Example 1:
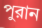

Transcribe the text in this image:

পুরান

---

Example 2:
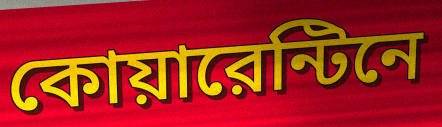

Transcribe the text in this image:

কোয়ারেন্টিনে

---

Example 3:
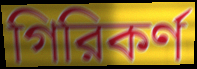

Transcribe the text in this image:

গিরিকর্ণ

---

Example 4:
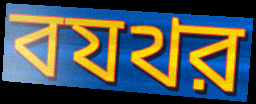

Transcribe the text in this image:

বযথর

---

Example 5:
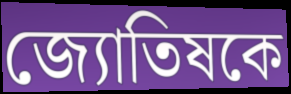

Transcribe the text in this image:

জ্যোতিষকে